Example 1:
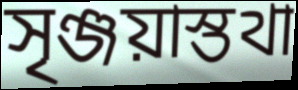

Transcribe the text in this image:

সৃঞ্জয়াস্তথা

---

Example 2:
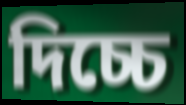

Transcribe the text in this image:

দিচ্চে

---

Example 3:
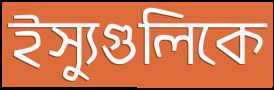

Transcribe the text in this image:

ইস্যুগুলিকে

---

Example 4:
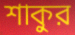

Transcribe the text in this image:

শাকুর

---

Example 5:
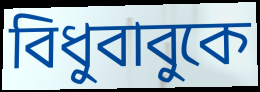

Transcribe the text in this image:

বিধুবাবুকে